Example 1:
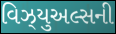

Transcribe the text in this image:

વિઝ્યુઅલ્સની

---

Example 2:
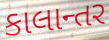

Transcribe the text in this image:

કાલાન્તર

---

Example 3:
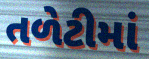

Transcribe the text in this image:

તળેટીમાં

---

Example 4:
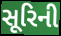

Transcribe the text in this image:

સૂરિની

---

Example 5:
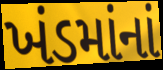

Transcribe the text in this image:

ખંડમાંનાં